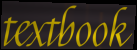
textbook